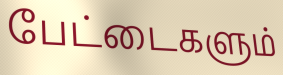
பேட்டைகளும்